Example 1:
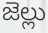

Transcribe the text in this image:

జెల్లు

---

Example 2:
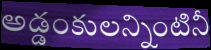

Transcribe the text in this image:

అడ్డంకులన్నింటినీ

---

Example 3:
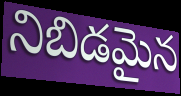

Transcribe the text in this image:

నిబిడమైన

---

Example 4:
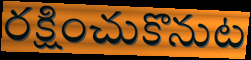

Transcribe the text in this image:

రక్షించుకొనుట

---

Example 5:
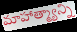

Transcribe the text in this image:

మాహాత్మ్యాన్ని